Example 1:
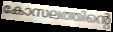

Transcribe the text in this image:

കോസലത്തിന്റെ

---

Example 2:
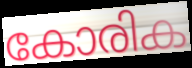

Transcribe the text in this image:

കോരിക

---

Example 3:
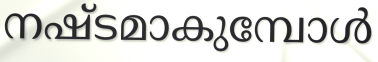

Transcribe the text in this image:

നഷ്ടമാകുമ്പോൾ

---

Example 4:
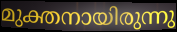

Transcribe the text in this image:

മുക്തനായിരുന്നു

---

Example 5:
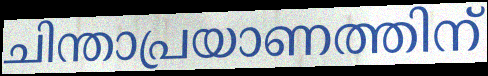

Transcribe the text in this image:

ചിന്താപ്രയാണത്തിന്